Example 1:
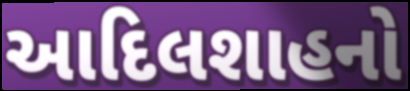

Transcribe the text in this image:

આદિલશાહનો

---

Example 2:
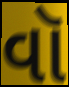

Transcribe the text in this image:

વૉ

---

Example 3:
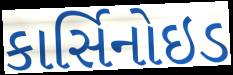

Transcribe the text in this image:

કાર્સિનોઇડ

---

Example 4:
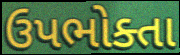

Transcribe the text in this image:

ઉપભોક્તા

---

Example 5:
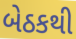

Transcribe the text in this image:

બેઠકથી